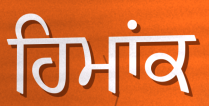
ਹਿਮਾਂਕ